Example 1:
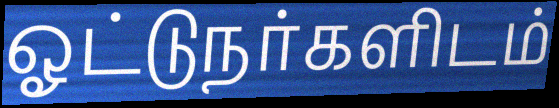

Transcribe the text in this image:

ஓட்டுநர்களிடம்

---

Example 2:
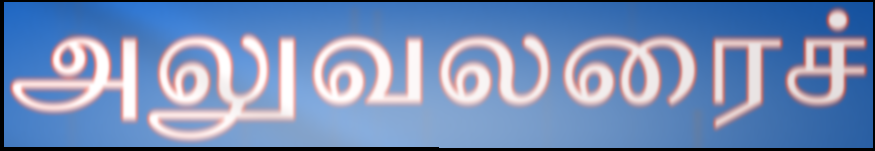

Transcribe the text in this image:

அலுவலரைச்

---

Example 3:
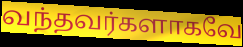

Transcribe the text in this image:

வந்தவர்களாகவே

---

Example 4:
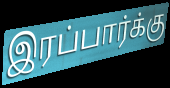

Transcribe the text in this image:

இரப்பார்க்கு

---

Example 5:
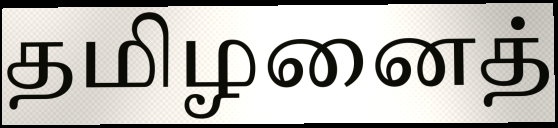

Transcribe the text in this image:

தமிழனைத்